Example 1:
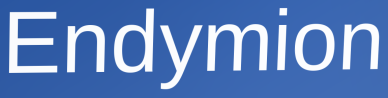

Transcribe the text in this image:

Endymion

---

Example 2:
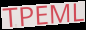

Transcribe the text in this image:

TPEML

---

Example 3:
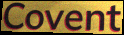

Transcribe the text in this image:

Covent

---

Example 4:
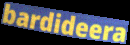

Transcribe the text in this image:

bardideera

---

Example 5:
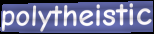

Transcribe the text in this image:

polytheistic